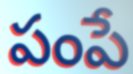
పంపే